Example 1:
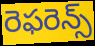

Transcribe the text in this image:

రెఫరెన్స్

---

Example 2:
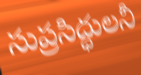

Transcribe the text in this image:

సుప్రసిద్ధులనీ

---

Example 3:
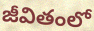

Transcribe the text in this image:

జీవితంలో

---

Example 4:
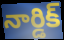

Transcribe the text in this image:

నార్డిక్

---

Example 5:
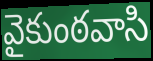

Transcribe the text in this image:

వైకుంఠవాసి